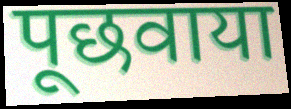
पूछवाया